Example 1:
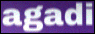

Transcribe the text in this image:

agadi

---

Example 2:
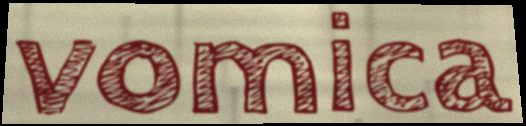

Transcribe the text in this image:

vomica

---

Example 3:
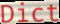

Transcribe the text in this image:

Dict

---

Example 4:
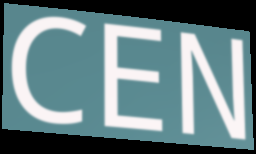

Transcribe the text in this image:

CEN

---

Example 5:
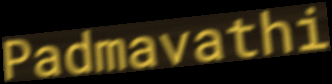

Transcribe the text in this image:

Padmavathi